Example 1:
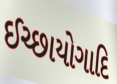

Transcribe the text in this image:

ઈચ્છાયોગાદિ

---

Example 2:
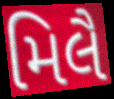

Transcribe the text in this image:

મિલૈ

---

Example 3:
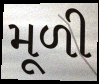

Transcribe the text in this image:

મૂળી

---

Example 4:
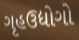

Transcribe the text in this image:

ગૃહઉદ્યોગો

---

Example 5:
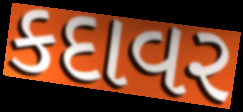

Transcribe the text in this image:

કદાવર